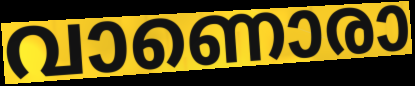
വാണൊരാ